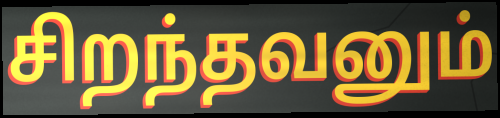
சிறந்தவனும்